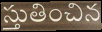
స్తుతించిన